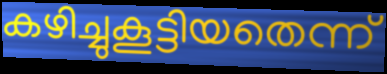
കഴിച്ചുകൂട്ടിയതെന്ന്